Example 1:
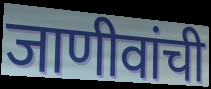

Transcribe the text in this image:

जाणीवांची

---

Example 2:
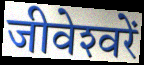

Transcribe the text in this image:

जीवेश्वरें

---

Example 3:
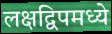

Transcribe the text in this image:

लक्षद्विपमध्ये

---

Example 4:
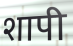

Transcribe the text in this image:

शापी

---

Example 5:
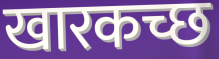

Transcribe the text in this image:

खारकच्छ